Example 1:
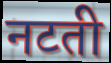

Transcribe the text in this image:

नटती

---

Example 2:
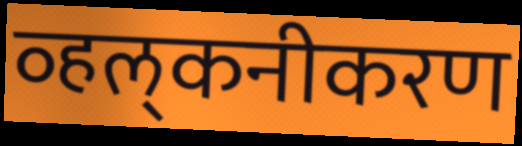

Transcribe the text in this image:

व्हल्कनीकरण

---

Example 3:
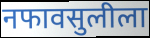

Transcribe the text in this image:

नफावसुलीला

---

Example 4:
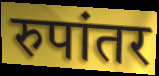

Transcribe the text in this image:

रुपांतर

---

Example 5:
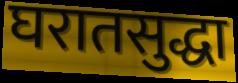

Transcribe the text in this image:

घरातसुद्धा